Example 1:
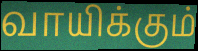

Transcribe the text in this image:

வாயிக்கும்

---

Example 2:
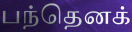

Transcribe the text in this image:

பந்தெனக்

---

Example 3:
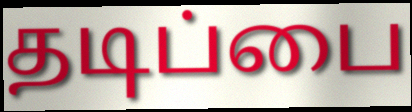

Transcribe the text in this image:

தடிப்பை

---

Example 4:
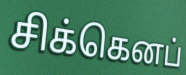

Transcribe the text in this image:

சிக்கெனப்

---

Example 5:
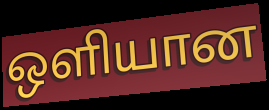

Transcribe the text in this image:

ஒளியான